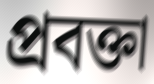
প্রবক্তা